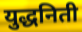
युद्धनिती